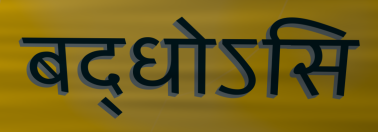
बद्धोऽसि